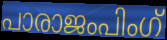
പാരാജംപിംഗ്